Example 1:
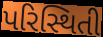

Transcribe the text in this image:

પરિસ્થિતી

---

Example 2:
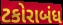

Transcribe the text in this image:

ટકોરાબંધ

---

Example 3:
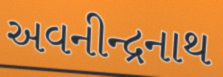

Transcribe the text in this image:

અવનીન્દ્રનાથ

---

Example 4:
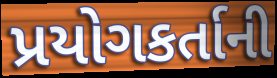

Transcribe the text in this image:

પ્રયોગકર્તાની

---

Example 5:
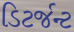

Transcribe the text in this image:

ડિટર્જન્ટ